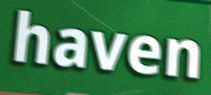
haven